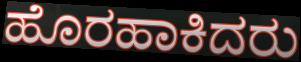
ಹೊರಹಾಕಿದರು